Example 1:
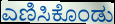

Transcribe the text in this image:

ಎಣಿಸಿಕೊಂಡು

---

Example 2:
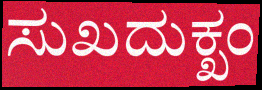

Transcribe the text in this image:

ಸುಖದುಕ್ಖಂ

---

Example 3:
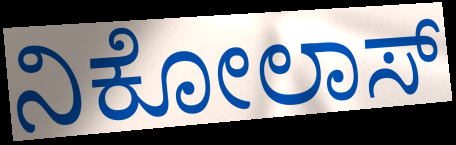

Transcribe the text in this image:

ನಿಕೋಲಾಸ್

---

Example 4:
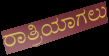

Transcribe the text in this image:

ರಾತ್ರಿಯಾಗಲು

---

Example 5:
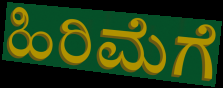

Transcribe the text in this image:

ಹಿರಿಮೆಗೆ